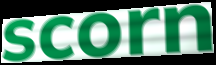
scorn